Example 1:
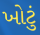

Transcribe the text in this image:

ખોટું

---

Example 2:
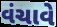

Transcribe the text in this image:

વંચાવે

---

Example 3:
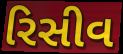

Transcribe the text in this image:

રિસીવ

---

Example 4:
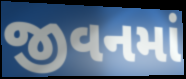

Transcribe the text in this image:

જીવનમાં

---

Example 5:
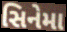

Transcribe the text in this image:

સિનેમા